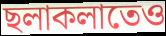
ছলাকলাতেও